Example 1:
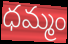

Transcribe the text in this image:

ధమ్మం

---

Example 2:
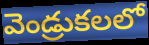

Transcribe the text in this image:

వెండ్రుకలలో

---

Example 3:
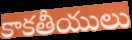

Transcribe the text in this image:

కాకతీయులు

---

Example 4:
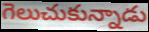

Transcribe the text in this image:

గెలుచుకున్నాడు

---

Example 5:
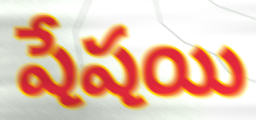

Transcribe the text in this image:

షేషయి